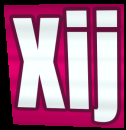
Xij